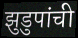
झुडुपांची